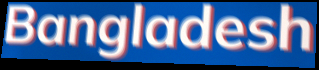
Bangladesh